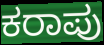
ಕರಾಪು